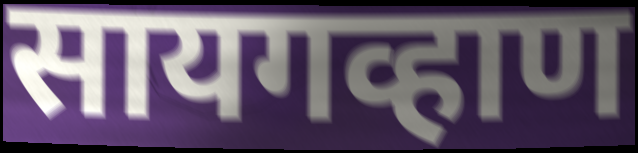
सायगव्हाण